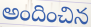
అందించిన